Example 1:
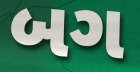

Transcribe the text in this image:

બગ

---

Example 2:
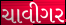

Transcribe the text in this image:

ચાવીગર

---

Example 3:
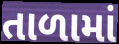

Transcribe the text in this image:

તાળામાં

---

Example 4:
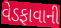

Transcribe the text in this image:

વેડફાવાની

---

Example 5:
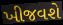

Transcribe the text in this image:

ખીજવશે